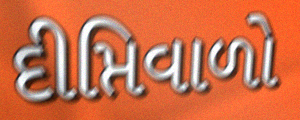
દીપ્તિવાળો